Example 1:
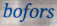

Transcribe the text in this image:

bofors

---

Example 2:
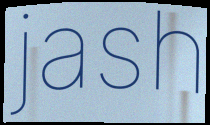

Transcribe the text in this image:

jash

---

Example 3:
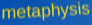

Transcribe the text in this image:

metaphysis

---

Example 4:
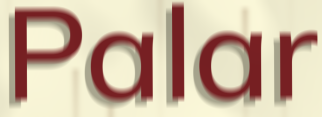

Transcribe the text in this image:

Palar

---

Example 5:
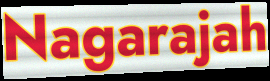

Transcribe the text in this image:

Nagarajah